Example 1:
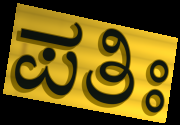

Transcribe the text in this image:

ಪತಿಃ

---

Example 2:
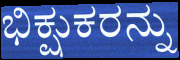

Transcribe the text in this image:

ಭಿಕ್ಷುಕರನ್ನು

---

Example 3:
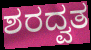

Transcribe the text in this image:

ಶರದ್ವತ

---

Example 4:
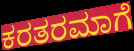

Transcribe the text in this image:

ಕರತರಮಾಗೆ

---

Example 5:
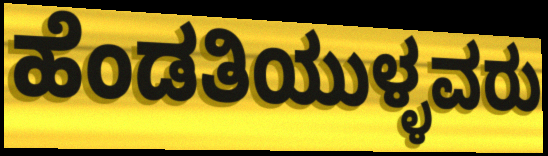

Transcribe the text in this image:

ಹೆಂಡತಿಯುಳ್ಳವರು